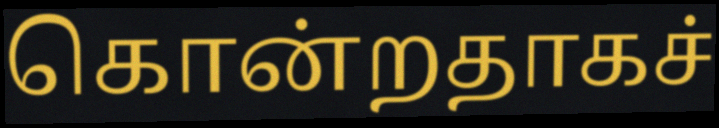
கொன்றதாகச்